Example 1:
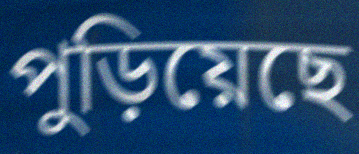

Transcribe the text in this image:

পুড়িয়েছে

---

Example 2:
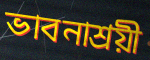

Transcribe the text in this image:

ভাবনাশ্রয়ী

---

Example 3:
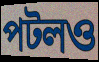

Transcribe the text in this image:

পটলও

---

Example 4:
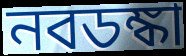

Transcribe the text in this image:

নবডঙ্কা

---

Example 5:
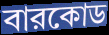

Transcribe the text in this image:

বারকোড